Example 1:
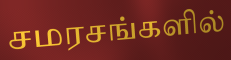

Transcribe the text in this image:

சமரசங்களில்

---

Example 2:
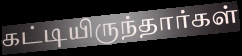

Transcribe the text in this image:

கட்டியிருந்தார்கள்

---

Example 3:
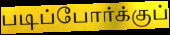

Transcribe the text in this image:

படிப்போர்க்குப்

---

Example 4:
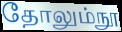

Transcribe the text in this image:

தோலும்நூ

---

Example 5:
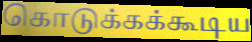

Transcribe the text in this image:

கொடுக்கக்கூடிய